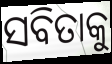
ସବିତାକୁ